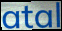
atal